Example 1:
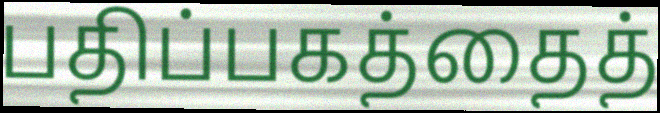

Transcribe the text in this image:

பதிப்பகத்தைத்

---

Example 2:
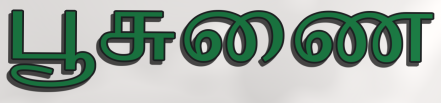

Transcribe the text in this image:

பூசுணை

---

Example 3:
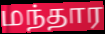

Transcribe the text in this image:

மந்தார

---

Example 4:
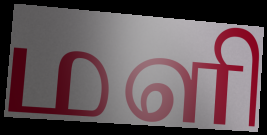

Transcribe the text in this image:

மளி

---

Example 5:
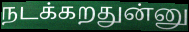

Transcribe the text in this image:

நடக்கறதுன்னு